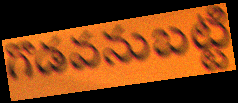
గొడవనుబట్టి